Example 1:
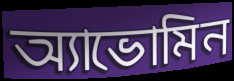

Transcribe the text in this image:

অ্যাভোমিন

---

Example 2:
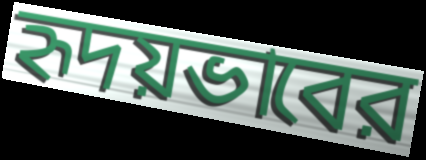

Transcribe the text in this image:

হৃদয়ভাবের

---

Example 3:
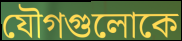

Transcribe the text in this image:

যৌগগুলোকে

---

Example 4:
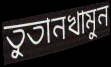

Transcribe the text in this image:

তুতানখামুন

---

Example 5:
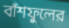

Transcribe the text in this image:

বাঁশফুলের